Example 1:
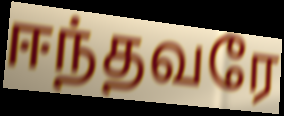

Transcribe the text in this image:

ஈந்தவரே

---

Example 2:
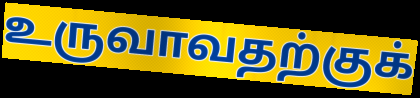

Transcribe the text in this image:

உருவாவதற்குக்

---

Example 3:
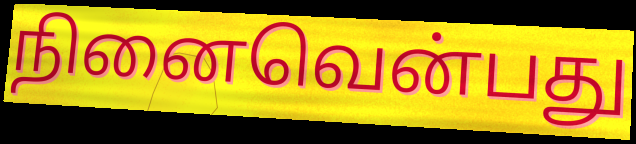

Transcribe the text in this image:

நினைவென்பது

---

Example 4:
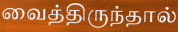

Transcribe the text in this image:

வைத்திருந்தால்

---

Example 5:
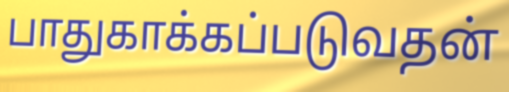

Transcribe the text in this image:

பாதுகாக்கப்படுவதன்